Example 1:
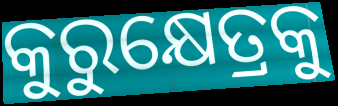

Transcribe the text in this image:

କୁରୁକ୍ଷେତ୍ରକୁ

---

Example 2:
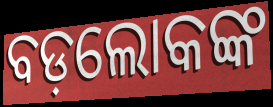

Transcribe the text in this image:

ବଡ଼ଲୋକଙ୍କ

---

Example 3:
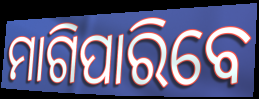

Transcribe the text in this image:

ମାଗିପାରିବେ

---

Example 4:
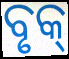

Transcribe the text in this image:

ବୃକ୍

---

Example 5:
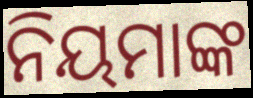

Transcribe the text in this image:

ନିୟମାଙ୍କ